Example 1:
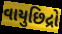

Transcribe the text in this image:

વાયુછિદ્રો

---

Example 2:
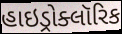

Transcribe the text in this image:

હાઇડ્રોક્લૉરિક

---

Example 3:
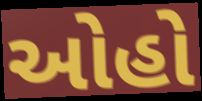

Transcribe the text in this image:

ઓહો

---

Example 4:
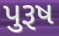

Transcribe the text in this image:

પુરૂષ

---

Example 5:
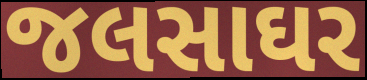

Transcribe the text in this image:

જલસાઘર